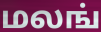
மலங்